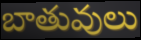
బాతువులు